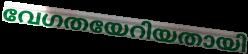
വേഗതയേറിയതായി